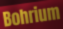
Bohrium